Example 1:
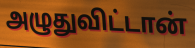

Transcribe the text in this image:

அழுதுவிட்டான்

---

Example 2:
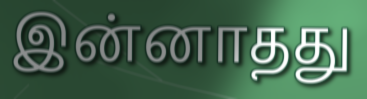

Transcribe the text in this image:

இன்னாதது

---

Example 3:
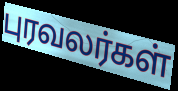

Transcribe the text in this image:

புரவலர்கள்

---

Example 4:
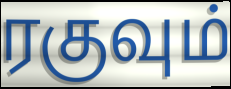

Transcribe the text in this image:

ரகுவும்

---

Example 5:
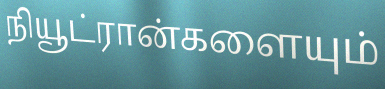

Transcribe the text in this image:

நியூட்ரான்களையும்